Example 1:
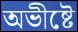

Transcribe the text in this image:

অভীষ্টে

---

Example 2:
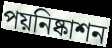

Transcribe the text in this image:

পয়নিষ্কাশন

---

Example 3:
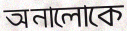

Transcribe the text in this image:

অনালোকে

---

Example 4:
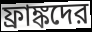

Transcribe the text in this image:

ফ্রাঙ্কদের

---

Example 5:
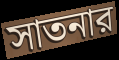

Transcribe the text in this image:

সাতনার